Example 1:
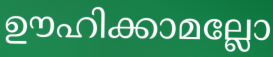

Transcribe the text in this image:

ഊഹിക്കാമല്ലോ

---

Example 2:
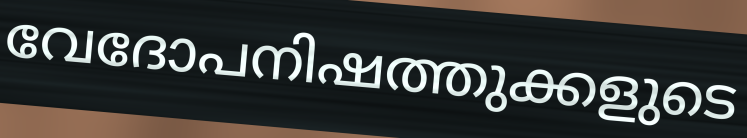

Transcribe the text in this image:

വേദോപനിഷത്തുക്കളുടെ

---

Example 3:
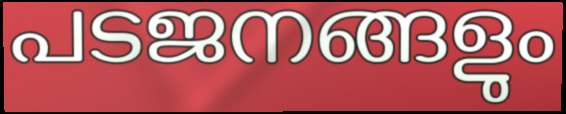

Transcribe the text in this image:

പടജനങ്ങളും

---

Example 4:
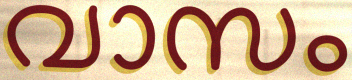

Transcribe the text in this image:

വാസം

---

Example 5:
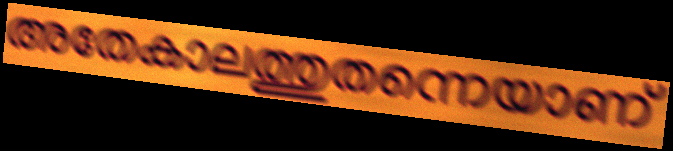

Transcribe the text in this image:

അതേകാലത്തുതന്നെയാണ്